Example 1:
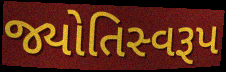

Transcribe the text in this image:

જ્યોતિસ્વરૂપ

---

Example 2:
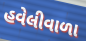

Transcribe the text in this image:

હવેલીવાળા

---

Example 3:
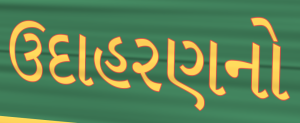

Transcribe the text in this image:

ઉદાહરણનો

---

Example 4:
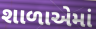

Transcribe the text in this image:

શાળાએમાં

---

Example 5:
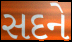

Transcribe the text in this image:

સદને